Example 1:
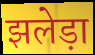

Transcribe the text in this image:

झलेड़ा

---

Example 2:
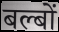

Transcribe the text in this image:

बल्बों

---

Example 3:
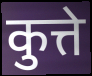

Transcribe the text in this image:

कुत्ते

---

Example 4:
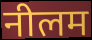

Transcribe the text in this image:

नीलम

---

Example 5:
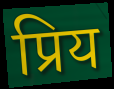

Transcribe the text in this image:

प्रिय